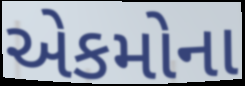
એકમોના